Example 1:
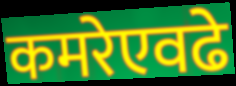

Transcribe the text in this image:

कमरेएवढे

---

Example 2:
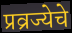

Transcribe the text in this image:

प्रव्रज्येचे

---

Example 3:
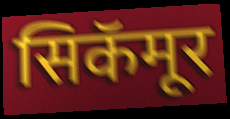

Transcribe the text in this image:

सिकॅमूर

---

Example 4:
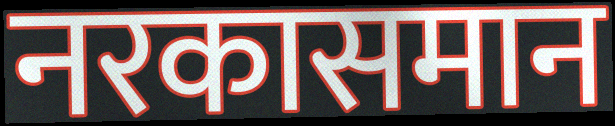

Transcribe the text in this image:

नरकासमान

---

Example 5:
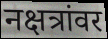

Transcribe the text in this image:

नक्षत्रांवर